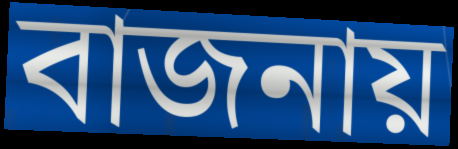
বাজনায়